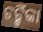
ଚର୍ଚ୍ଚିକା